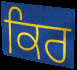
ਕਿਰ